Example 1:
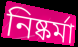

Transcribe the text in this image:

নিষ্কর্মা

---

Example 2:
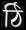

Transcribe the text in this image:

ঠি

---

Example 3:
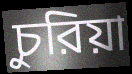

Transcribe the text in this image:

চুরিয়া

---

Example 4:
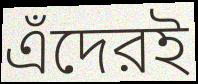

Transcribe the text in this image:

এঁদেরই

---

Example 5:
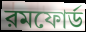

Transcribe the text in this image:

রমফোর্ড